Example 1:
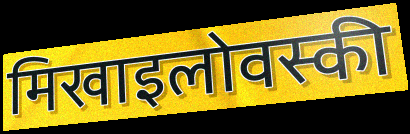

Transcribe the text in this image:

मिखाइलोवस्की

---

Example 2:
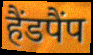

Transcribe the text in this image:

हैंडपैंप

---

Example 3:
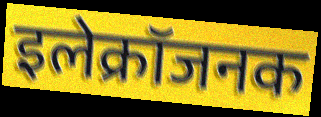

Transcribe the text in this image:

इलेक्रॉजनक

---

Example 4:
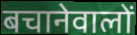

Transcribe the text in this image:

बचानेवालों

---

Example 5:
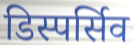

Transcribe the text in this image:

डिस्पर्सिव